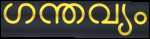
ഗന്തവ്യം